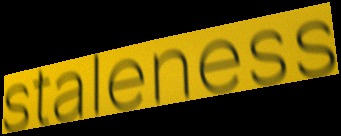
staleness